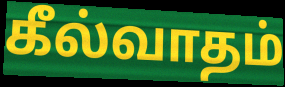
கீல்வாதம்